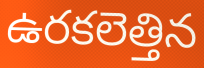
ఉరకలెత్తిన